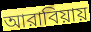
আরাবিয়ায়